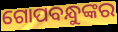
ଗୋପବନ୍ଧୁଙ୍କର